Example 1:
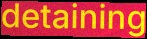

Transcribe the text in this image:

detaining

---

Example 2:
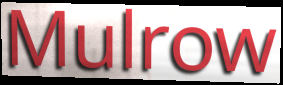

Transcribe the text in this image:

Mulrow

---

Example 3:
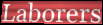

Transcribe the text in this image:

Laborers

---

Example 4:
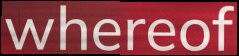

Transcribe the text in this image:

whereof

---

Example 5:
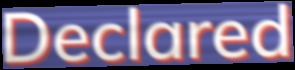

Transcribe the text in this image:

Declared